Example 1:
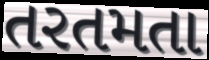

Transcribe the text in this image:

તરતમતા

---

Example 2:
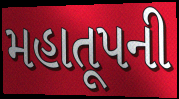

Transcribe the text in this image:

મહાતૂપની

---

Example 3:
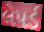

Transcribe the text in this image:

લેપર્ડ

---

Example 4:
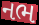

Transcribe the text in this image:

નભ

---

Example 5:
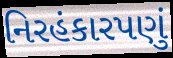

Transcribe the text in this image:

નિરહંકારપણું